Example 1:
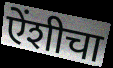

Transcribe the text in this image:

ऐंशीचा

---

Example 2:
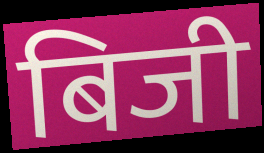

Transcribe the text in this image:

बिजी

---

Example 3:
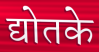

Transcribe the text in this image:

द्योतके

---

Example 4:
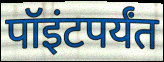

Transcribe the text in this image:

पॉइंटपर्यंत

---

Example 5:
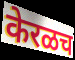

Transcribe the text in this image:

केरळच